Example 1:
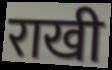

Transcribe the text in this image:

राखी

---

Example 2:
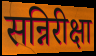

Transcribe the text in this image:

सन्निरीक्षा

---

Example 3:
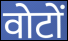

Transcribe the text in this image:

वोटों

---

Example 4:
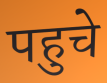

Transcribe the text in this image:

पहुचे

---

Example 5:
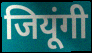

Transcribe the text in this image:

जियूंगी